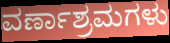
ವರ್ಣಾಶ್ರಮಗಳು